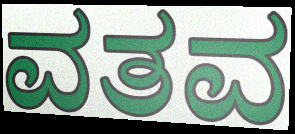
ವತವ